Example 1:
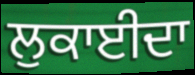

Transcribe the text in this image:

ਲੁਕਾਈਦਾ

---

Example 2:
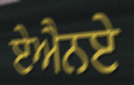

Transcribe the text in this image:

ਏਐਨਏ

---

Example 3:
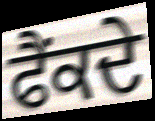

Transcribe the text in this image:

ਫੈਂਕਦੇ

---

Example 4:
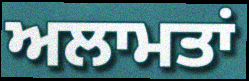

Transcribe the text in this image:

ਅਲਾਮਤਾਂ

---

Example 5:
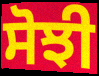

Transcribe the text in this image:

ਸੋਝੀ